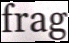
frag